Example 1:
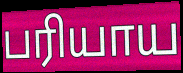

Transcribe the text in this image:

பரியாய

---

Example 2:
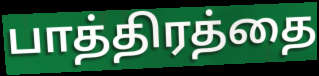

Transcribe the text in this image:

பாத்திரத்தை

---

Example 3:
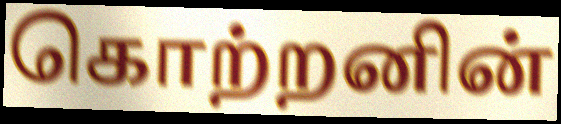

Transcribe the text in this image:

கொற்றனின்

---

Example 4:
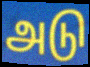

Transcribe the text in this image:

அடு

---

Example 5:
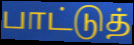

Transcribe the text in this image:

பாட்டுத்